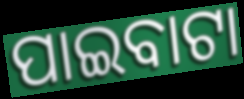
ପାଇବାଟା